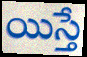
యిస్తే